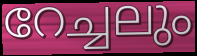
റേച്ചലും